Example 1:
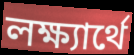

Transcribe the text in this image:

লক্ষ্যার্থে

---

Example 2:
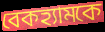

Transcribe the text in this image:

বেকহ্যামকে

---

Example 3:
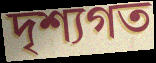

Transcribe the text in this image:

দৃশ্যগত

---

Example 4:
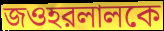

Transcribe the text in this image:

জওহরলালকে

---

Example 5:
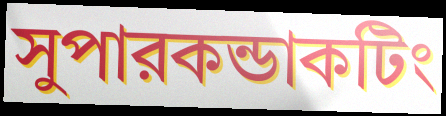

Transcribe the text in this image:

সুপারকন্ডাকটিং